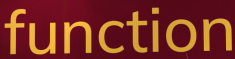
function